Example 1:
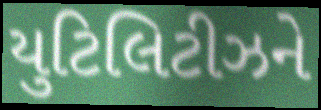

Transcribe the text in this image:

યુટિલિટીઝને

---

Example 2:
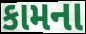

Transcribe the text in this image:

કામના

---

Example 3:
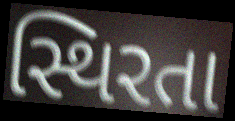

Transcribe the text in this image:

સ્થિરતા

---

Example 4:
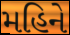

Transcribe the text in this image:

મહિને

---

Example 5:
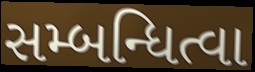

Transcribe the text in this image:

સમ્બન્ધિત્વા